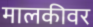
मालकीवर